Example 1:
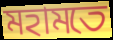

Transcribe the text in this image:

মহামতে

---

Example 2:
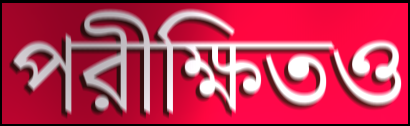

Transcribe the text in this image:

পরীক্ষিতও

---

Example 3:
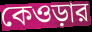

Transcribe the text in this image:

কেওড়ার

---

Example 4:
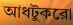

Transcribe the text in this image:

আধটুকরো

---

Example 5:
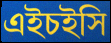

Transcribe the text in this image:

এইচইসি